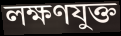
লক্ষণযুক্ত